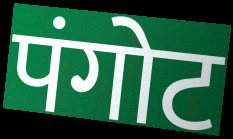
पंगोट